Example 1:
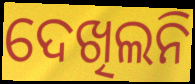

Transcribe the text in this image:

ଦେଖିଲନି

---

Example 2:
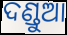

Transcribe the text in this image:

ଦଣ୍ଡୁଆ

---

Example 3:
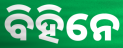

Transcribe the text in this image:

ବିହିନେ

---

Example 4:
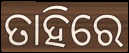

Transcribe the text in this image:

ତାହିରେ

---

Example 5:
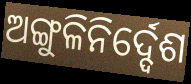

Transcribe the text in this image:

ଅଙ୍ଗୁଳିନିର୍ଦ୍ଦେଶ